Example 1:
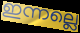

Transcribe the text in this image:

ഇന്നല്ലെ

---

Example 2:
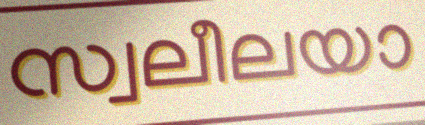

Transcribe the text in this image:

സ്വലീലയാ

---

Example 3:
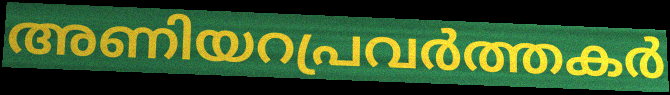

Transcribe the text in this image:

അണിയറപ്രവർത്തകർ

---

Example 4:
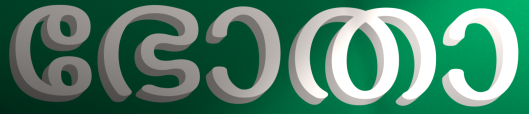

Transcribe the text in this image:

ഭോതാ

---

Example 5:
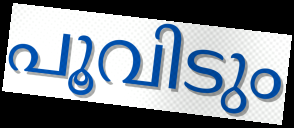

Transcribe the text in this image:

പൂവിടും